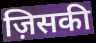
ज़िसकी